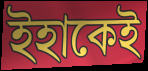
ইহাকেই